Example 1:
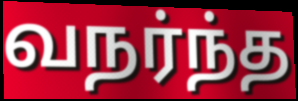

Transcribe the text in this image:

வநர்ந்த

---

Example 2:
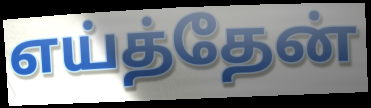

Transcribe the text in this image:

எய்த்தேன்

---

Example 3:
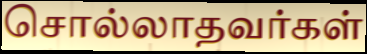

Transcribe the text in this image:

சொல்லாதவர்கள்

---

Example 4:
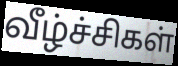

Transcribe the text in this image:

வீழ்ச்சிகள்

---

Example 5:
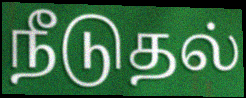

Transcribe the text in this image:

நீடுதல்